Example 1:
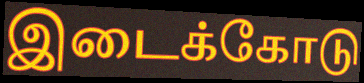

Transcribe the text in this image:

இடைக்கோடு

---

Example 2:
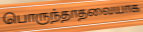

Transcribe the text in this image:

பொருந்தாதவையாக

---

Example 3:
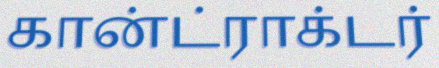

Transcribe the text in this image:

கான்ட்ராக்டர்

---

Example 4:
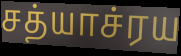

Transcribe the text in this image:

சத்யாச்ரய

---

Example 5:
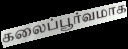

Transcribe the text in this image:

கலைப்பூர்வமாக